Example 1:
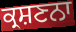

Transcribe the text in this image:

ਕ੍ਰਸ਼ਣਨਾ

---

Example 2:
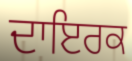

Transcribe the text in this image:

ਦਾਇਰਕ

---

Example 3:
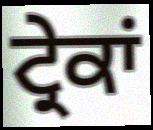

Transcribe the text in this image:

ਟ੍ਰੇਕਾਂ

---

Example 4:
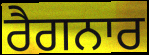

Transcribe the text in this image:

ਰੈਗਨਾਰ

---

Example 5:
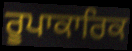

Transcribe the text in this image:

ਰੂਪਾਕਾਰਿਕ